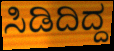
ಸಿಡಿದಿದ್ದ